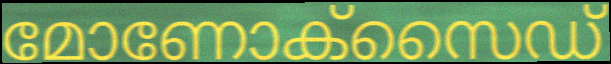
മോണോക്സൈഡ്